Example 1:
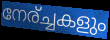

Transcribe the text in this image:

നേര്ച്ചകളും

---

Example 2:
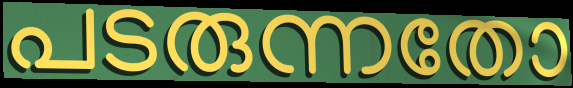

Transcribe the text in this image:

പടരുന്നതോ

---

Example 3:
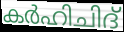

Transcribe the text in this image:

കർഹിചിദ്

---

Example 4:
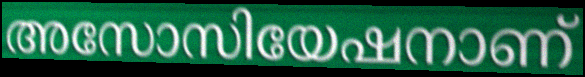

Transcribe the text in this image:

അസോസിയേഷനാണ്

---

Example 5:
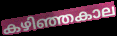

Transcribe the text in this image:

കഴിഞ്ഞകാല